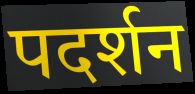
पदर्शन